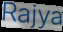
Rajya